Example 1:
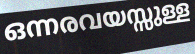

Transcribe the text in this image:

ഒന്നരവയസ്സുള്ള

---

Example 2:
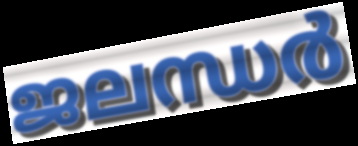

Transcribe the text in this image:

ജലന്ധർ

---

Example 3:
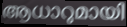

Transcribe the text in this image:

ആധാറുമായി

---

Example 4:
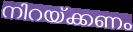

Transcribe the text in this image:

നിറയ്‌ക്കണം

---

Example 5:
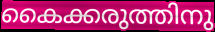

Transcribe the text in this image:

കൈക്കരുത്തിനു